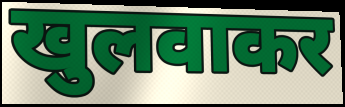
खुलवाकर